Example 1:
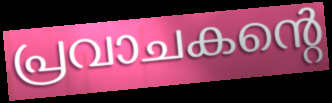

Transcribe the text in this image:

പ്രവാചകന്റെ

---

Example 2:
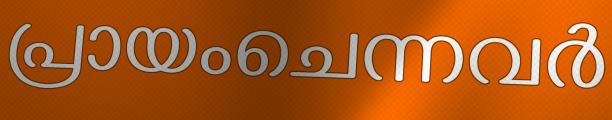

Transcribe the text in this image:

പ്രായംചെന്നവർ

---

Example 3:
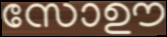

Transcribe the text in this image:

സോഊ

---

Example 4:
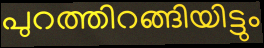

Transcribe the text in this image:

പുറത്തിറങ്ങിയിട്ടും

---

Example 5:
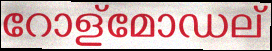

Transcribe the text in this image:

റോള്മോഡല്